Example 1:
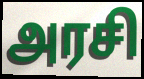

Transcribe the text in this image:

அரசி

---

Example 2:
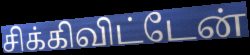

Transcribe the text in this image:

சிக்கிவிட்டேன்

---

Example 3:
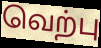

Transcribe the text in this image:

வெற்பு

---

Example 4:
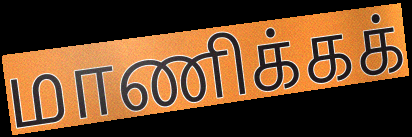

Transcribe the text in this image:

மாணிக்கக்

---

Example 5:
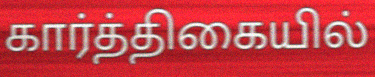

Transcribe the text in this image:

கார்த்திகையில்